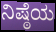
ನಿಷ್ಠೆಯ